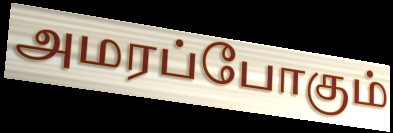
அமரப்போகும்